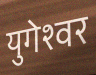
युगेश्वर